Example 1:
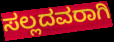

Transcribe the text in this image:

ಸಲ್ಲದವರಾಗಿ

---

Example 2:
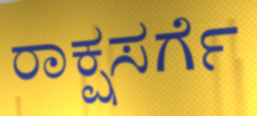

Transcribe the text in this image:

ರಾಕ್ಷಸರ್ಗೆ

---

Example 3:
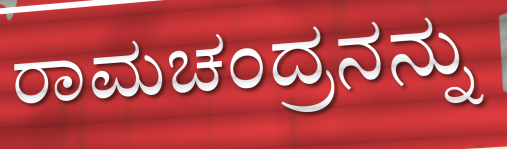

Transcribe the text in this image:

ರಾಮಚಂದ್ರನನ್ನು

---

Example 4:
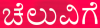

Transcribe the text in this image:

ಚೆಲುವಿಗೆ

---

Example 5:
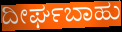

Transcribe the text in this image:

ದೀರ್ಘಬಾಹು